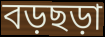
বড়ছড়া